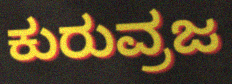
ಕುರುವ್ರಜ